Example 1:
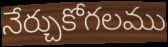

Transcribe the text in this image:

నేర్చుకోగలము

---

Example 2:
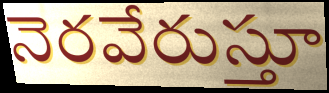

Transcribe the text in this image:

నెరవేరుస్తూ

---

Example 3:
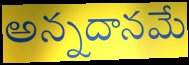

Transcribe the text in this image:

అన్నదానమే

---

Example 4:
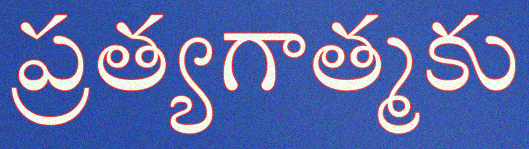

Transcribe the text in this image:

ప్రత్యగాత్మకు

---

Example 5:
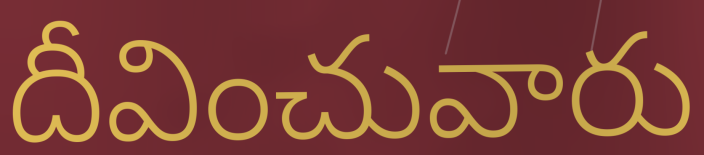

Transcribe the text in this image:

దీవించువారు